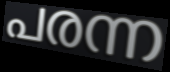
പരന്ന